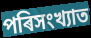
পৰিসংখ্যাত